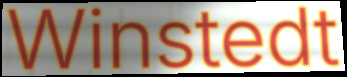
Winstedt